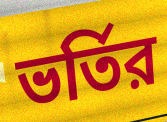
ভর্তির